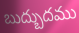
బుద్బుదము